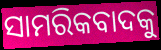
ସାମରିକବାଦକୁ